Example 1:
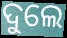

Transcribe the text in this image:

ଦୁଲେ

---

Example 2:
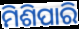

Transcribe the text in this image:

ମିଶିପାରି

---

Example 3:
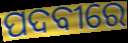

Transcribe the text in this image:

ପଦବୀରେ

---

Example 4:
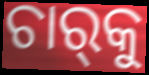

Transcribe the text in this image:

ଚାର୍‌କୁ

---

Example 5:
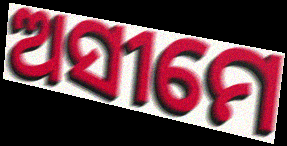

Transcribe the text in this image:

ଅସୀମେ